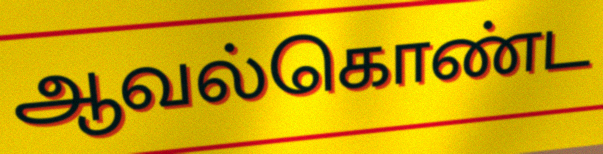
ஆவல்கொண்ட